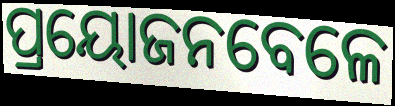
ପ୍ରୟୋଜନବେଳେ